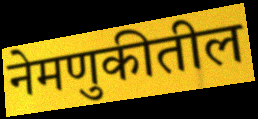
नेमणुकीतील